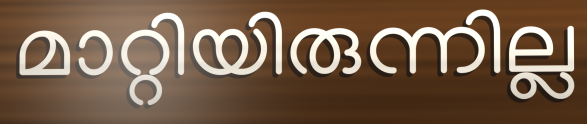
മാറ്റിയിരുന്നില്ല